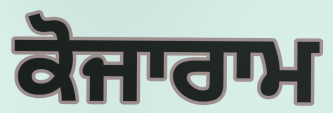
ਕੋਜਾਰਾਮ